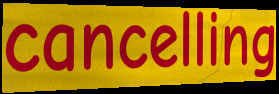
cancelling